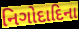
નિગોદાદિના